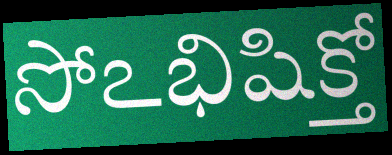
సోఽభిషిక్తో